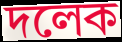
দলেক